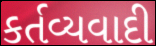
કર્તવ્યવાદી